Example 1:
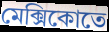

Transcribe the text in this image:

মেক্সিকোতে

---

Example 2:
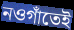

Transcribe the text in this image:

নওগাঁতেই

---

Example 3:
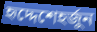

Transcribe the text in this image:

হৃদ্দেশেহর্জুন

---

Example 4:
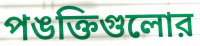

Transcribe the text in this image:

পঙক্তিগুলোর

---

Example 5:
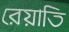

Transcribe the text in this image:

রেয়াতি